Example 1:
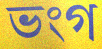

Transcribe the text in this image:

ভংগ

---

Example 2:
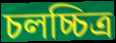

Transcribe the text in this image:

চলচ্চিত্ৰ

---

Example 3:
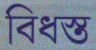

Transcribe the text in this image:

বিধস্ত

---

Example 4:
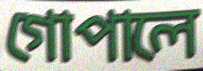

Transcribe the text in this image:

গোপালে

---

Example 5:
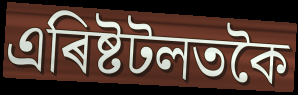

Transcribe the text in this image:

এৰিষ্টটলতকৈ